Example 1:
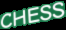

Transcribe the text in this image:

CHESS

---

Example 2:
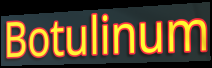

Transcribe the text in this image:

Botulinum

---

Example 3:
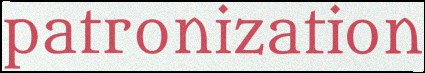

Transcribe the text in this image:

patronization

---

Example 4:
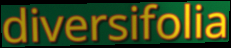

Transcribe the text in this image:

diversifolia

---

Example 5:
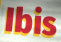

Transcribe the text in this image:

Ibis